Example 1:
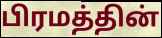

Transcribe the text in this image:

பிரமத்தின்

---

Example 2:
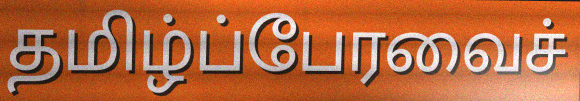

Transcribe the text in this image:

தமிழ்ப்பேரவைச்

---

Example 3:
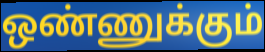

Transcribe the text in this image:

ஒண்ணுக்கும்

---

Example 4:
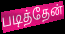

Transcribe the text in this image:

படித்தேன்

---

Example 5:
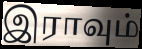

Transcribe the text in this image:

இராவும்